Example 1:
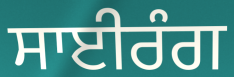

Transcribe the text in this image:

ਸਾਈਰੰਗ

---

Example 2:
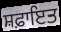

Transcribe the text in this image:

ਸ਼ਫ਼ਾਇਤ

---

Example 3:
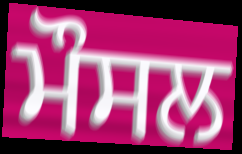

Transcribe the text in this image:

ਮੌਸਲ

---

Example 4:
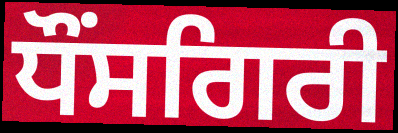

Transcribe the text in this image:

ਧੌਂਸਗਿਰੀ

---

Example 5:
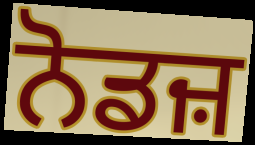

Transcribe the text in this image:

ਨੋਡਜ਼